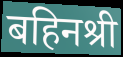
बहिनश्री